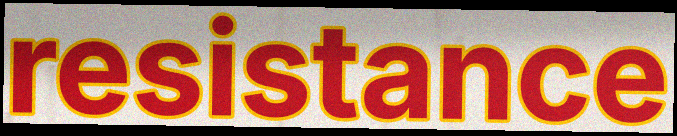
resistance